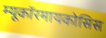
म्यूकॉरमायकोसिस